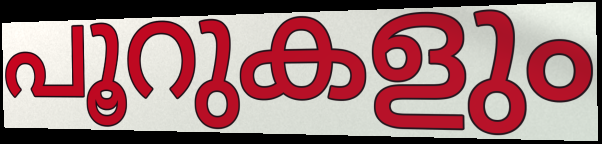
പൂറുകളും